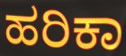
ಹರಿಕಾ